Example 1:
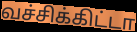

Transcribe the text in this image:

வச்சிக்கிட்டா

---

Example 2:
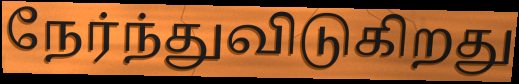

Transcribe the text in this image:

நேர்ந்துவிடுகிறது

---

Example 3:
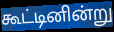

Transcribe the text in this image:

கூட்டினின்று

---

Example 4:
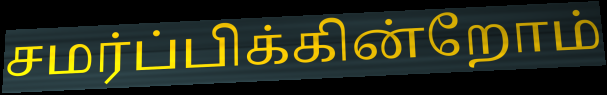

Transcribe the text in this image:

சமர்ப்பிக்கின்றோம்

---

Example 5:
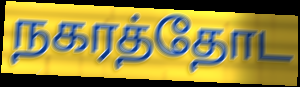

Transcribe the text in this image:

நகரத்தோட